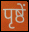
पृष्ठें